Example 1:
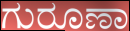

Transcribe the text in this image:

ಗುರೂಣಾ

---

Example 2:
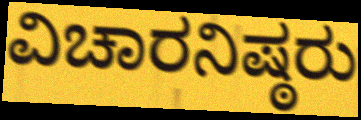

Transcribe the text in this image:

ವಿಚಾರನಿಷ್ಠರು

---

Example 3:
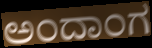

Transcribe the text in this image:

ಅಂದಾಂಗ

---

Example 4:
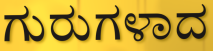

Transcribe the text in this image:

ಗುರುಗಳಾದ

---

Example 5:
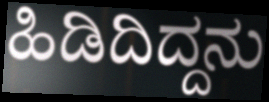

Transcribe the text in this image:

ಹಿಡಿದಿದ್ದನು